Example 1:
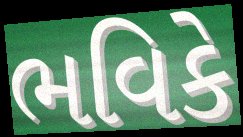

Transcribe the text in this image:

ભવિકે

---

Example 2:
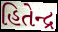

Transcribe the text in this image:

હિતેન્દ્ર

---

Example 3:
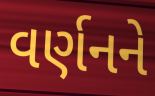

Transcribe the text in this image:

વર્ણનને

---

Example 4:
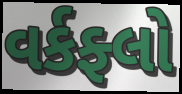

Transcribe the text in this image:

વર્કફ્લો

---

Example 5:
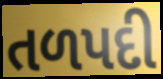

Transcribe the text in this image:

તળપદી